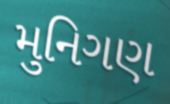
મુનિગણ